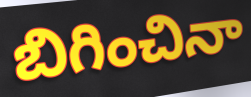
బిగించినా